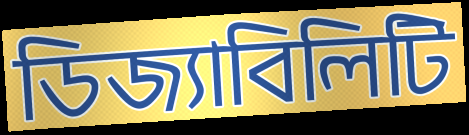
ডিজ্যাবিলিটি